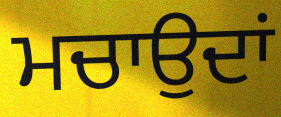
ਮਚਾਉਦਾਂ